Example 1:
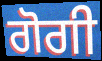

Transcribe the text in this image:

ਗੋਗੀ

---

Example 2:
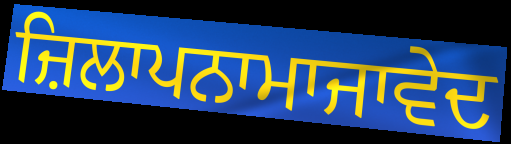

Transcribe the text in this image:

ਜ਼ਿਲਾਪਨਾਮਾਜਾਵੇਦ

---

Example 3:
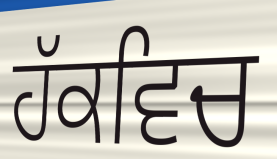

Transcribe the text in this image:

ਹੱਕਵਿਚ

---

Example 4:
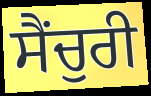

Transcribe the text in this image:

ਸੈਂਚੁਰੀ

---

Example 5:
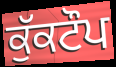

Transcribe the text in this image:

ਕੁੱਕਟੌਪ